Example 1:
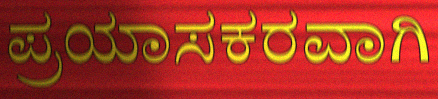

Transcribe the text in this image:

ಪ್ರಯಾಸಕರವಾಗಿ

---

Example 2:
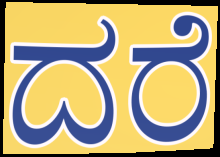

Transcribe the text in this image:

ದರೆ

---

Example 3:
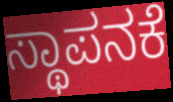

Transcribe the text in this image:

ಸ್ಥಾಪನಕೆ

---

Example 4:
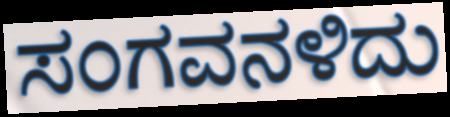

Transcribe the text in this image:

ಸಂಗವನಳಿದು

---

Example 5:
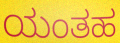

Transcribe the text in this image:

ಯಂತಹ